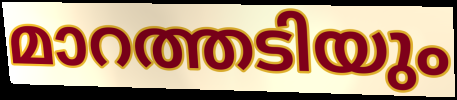
മാറത്തടിയും